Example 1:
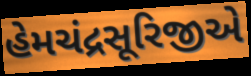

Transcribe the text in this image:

હેમચંદ્રસૂરિજીએ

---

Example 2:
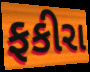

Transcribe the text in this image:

ફકીરા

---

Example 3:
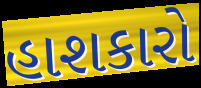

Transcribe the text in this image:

હાશકારો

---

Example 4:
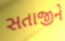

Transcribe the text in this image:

સતાજીને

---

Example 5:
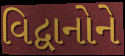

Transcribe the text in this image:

વિદ્વાનોને